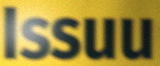
Issuu